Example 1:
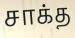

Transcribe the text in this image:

சாக்த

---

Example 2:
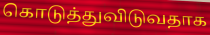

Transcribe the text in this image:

கொடுத்துவிடுவதாக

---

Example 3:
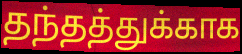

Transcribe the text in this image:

தந்தத்துக்காக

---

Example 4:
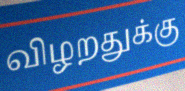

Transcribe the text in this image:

விழறதுக்கு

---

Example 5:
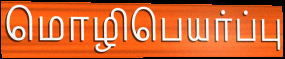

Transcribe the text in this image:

மொழிபெயர்ப்பு